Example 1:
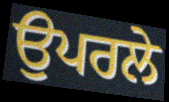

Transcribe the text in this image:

ਉਪਰਲੇ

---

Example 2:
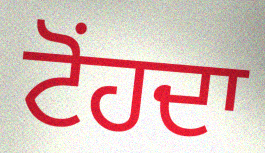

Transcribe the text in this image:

ਟੋਂਹਦਾ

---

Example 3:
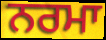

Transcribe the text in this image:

ਨਰਮਾ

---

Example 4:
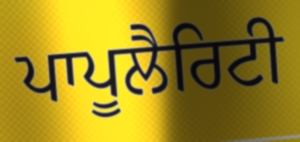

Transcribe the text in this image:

ਪਾਪੂਲੈਰਿਟੀ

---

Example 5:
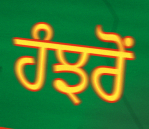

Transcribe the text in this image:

ਹੰਝਰੋਂ